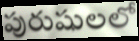
పురుషులలో